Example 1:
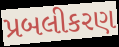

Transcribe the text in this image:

પ્રબલીકરણ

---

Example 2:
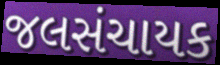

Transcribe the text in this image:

જલસંચાયક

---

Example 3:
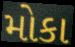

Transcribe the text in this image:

મોકા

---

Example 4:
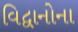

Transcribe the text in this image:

વિદ્વાનોના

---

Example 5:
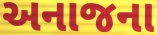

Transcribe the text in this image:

અનાજના